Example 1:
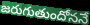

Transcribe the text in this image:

జరుగుతుందోననే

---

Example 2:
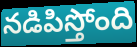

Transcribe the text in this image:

నడిపిస్తోంది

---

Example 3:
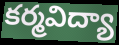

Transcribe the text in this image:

కర్మవిద్యా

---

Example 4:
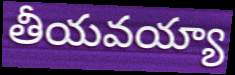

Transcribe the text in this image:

తీయవయ్యా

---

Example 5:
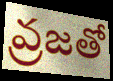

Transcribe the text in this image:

వ్రజతో